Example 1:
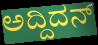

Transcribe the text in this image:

ಅದ್ದಿದನ್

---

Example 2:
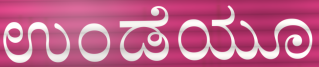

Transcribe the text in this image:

ಉಂಡೆಯೂ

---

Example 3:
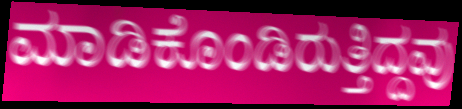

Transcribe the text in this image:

ಮಾಡಿಕೊಂಡಿರುತ್ತಿದ್ದವು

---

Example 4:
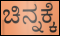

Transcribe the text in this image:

ಚಿನ್ನಕ್ಕೆ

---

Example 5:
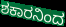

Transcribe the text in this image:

ಶಕಾರನಿಂದ